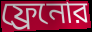
ফ্রেনোর